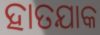
ହାତଯାକ